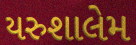
યરુશાલેમ